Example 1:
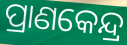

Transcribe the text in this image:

ପ୍ରାଣକେନ୍ଦ୍ର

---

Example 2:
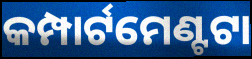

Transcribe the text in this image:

କମ୍ପାର୍ଟମେଣ୍ଟଟା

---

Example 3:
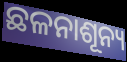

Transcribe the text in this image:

ଛଳନାଶୂନ୍ୟ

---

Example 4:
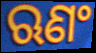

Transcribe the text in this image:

ଋଣଂ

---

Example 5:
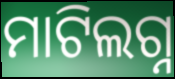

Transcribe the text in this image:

ମାଟିଲଗ୍ନ